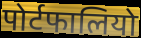
पोर्टफालियो